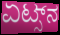
ಏಟ್ಸ್‌ನ